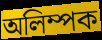
অলিম্পক